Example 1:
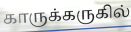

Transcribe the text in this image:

காருக்கருகில்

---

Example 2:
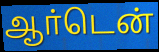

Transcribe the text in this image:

ஆர்டென்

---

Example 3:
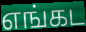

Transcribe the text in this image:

எங்கட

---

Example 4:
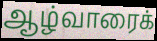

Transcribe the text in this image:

ஆழ்வாரைக்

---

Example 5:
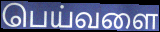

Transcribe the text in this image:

பெய்வளை